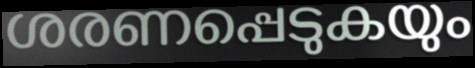
ശരണപ്പെടുകയും